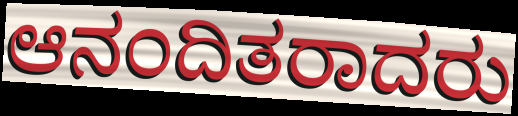
ಆನಂದಿತರಾದರು